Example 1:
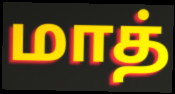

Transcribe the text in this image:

மாத்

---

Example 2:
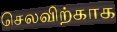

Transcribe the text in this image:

செலவிற்காக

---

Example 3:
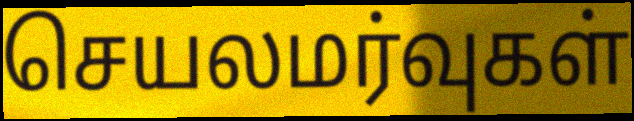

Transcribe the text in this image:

செயலமர்வுகள்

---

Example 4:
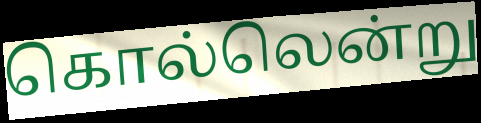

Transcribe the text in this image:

கொல்லென்று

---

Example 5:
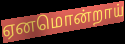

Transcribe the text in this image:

ஏனமொன்றாய்